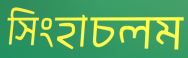
সিংহাচলম